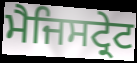
ਮੈਜਿਸਟ੍ਰੇਟ